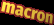
macron